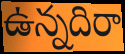
ఉన్నదిరా